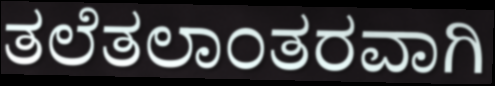
ತಲೆತಲಾಂತರವಾಗಿ